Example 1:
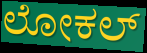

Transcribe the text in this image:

ಲೋಕಲ್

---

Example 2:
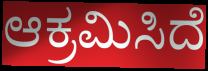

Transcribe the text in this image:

ಆಕ್ರಮಿಸಿದೆ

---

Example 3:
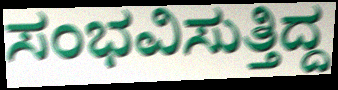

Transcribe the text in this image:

ಸಂಭವಿಸುತ್ತಿದ್ದ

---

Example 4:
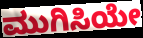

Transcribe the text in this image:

ಮುಗಿಸಿಯೇ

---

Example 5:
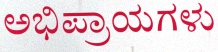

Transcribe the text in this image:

ಅಭಿಪ್ರಾಯಗಳು